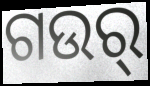
ଗଉର୍